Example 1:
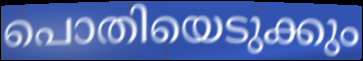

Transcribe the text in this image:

പൊതിയെടുക്കും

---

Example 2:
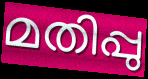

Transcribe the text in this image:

മതിപ്പു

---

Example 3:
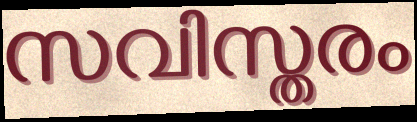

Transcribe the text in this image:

സവിസ്തരം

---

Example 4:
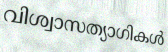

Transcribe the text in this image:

വിശ്വാസത്യാഗികൾ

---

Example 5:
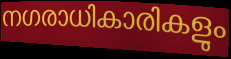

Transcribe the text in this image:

നഗരാധികാരികളും